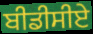
ਬੀਡੀਸੀਏ